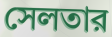
সেলতার